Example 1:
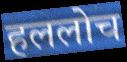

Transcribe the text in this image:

हललोच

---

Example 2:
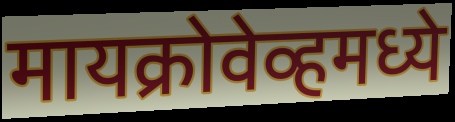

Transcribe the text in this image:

मायक्रोवेव्हमध्ये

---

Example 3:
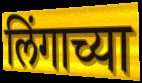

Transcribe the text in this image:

लिंगाच्या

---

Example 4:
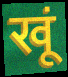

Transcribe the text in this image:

खूं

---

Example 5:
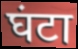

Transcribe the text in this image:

घंटा